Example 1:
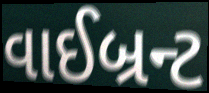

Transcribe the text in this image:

વાઈબ્રન્ટ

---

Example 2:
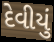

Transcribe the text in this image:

દેવીયું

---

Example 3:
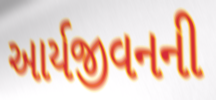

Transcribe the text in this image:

આર્યજીવનની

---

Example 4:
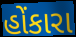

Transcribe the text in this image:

હોંકારા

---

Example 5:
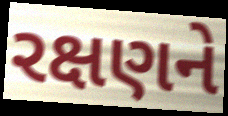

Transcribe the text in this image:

રક્ષણને